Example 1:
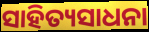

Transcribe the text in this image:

ସାହିତ୍ୟସାଧନା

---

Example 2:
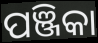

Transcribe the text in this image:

ପଞ୍ଜିକା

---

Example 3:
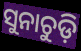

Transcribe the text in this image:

ସୁନାଚୁଡ଼ି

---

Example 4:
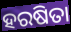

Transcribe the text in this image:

ହରଷିତା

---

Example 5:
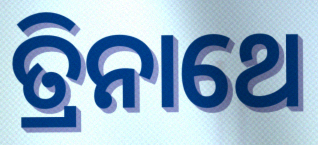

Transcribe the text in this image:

ତ୍ରିନାଥେ